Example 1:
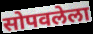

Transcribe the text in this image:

सोपवलेला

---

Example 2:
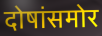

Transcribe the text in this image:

दोषांसमोर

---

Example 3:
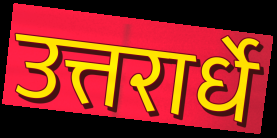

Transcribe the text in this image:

उत्तरार्धे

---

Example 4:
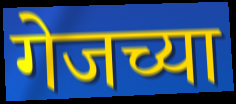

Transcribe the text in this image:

गेजच्या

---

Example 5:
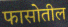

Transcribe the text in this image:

फासोतील